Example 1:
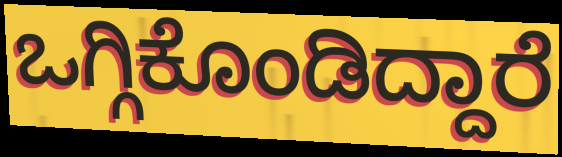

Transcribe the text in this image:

ಒಗ್ಗಿಕೊಂಡಿದ್ದಾರೆ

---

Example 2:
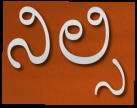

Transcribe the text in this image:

ನಿಲ್ಸಿ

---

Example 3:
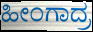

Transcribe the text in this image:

ಹೀಂಗಾದ್ರ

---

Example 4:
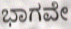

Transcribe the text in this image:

ಭಾಗವೇ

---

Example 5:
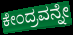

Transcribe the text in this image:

ಕೇಂದ್ರವನ್ನೇ